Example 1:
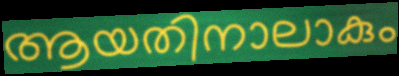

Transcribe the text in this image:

ആയതിനാലാകും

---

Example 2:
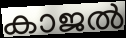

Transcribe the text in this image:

കാജൽ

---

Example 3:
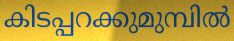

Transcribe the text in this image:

കിടപ്പറക്കുമുമ്പിൽ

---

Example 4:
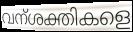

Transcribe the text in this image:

വന്ശക്തികളെ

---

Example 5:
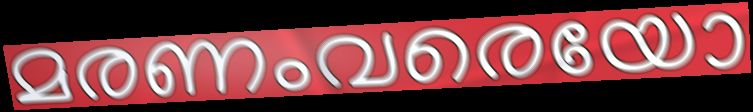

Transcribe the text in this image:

മരണംവരെയോ